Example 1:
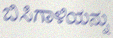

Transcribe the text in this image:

ಬಿಸಿಗಾಳಿಯನ್ನು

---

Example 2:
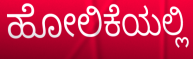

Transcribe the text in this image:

ಹೋಲಿಕೆಯಲ್ಲಿ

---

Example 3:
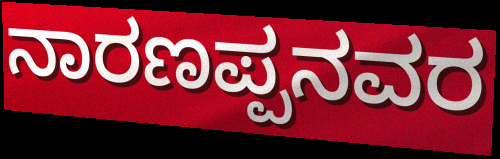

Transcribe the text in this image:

ನಾರಣಪ್ಪನವರ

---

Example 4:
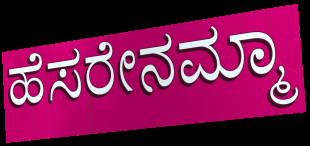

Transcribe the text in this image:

ಹೆಸರೇನಮ್ಮಾ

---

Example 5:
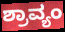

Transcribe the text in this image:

ಶ್ರಾವ್ಯಂ